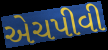
એચપીવી